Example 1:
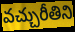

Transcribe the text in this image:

వచ్చురీతిని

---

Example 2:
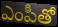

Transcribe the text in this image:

ఎంపీతో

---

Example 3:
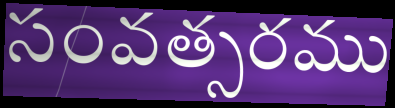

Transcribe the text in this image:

సంవత్సరము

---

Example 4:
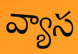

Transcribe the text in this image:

వ్యాస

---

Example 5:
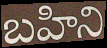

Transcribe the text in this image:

బహిని